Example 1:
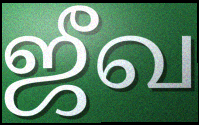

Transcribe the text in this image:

ஜீவ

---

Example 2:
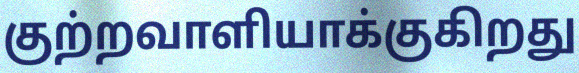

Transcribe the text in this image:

குற்றவாளியாக்குகிறது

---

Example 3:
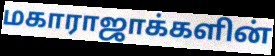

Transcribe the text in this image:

மகாராஜாக்களின்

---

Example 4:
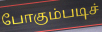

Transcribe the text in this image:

போகும்படிச்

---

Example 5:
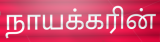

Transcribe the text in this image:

நாயக்கரின்